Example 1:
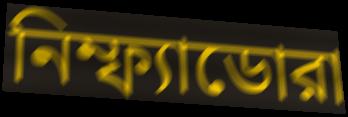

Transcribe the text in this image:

নিম্ফ্যাডোরা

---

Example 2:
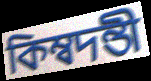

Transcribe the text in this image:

কিম্বদন্তী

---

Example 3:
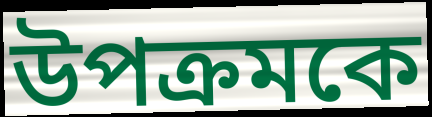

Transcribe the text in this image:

উপক্রমকে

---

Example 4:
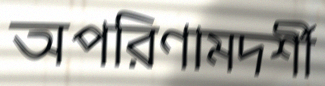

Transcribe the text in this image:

অপরিণামদর্শী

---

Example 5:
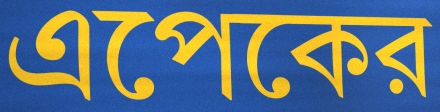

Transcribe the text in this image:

এপেকের